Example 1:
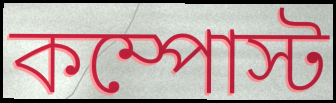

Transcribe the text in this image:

কম্পোস্ট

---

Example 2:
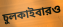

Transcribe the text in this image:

চুলকাইবারও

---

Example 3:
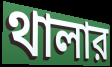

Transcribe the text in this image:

থালার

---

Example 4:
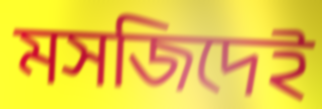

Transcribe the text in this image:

মসজিদেই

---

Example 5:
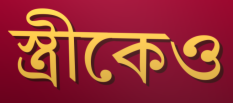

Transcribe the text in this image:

স্ত্রীকেও